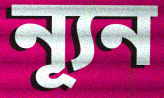
ন্যূন